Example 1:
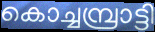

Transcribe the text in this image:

കൊച്ചമ്പ്രാട്ടി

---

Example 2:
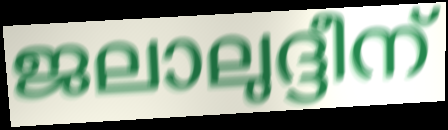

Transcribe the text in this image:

ജലാലുദ്ദീന്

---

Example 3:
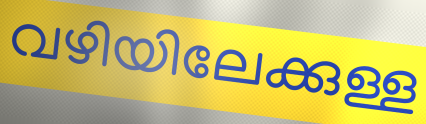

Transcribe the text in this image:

വഴിയിലേക്കുള്ള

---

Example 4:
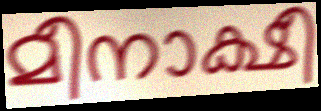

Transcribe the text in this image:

മീനാക്ഷീ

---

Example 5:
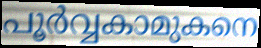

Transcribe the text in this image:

പൂർവ്വകാമുകനെ